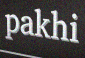
pakhi